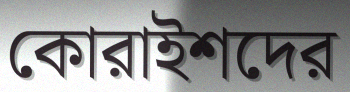
কোরাইশদের